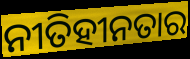
ନୀତିହୀନତାର